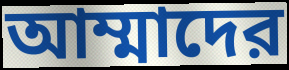
আম্মাদের